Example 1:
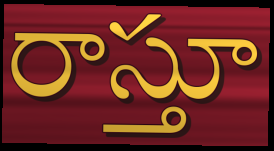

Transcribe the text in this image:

రాస్తూ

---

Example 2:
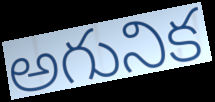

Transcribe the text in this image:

అగునిక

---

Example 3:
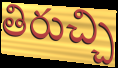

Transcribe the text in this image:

తిరుచ్చి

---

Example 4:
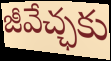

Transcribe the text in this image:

జీవేచ్ఛకు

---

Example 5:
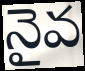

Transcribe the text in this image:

నైవ